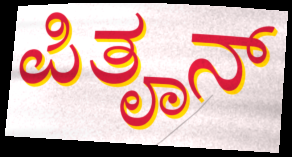
ಪಿತೄನ್